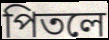
পিতলে